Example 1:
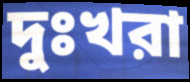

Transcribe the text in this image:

দুঃখরা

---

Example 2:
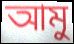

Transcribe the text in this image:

আমু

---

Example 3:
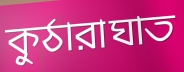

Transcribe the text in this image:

কুঠারাঘাত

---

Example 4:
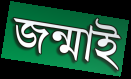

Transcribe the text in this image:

জন্মাই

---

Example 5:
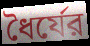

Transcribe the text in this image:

ধৈর্যের